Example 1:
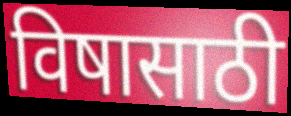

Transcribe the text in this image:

विषासाठी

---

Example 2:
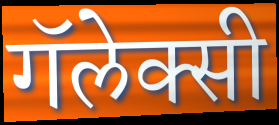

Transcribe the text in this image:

गॅलेक्सी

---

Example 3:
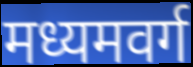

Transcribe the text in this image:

मध्यमवर्ग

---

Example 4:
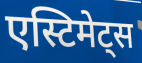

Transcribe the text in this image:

एस्टिमेट्स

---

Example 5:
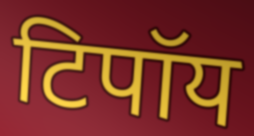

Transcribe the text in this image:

टिपॉय